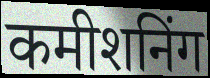
कमीशनिंग